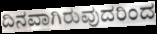
ದಿನವಾಗಿರುವುದರಿಂದ